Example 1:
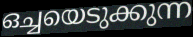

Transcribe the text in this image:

ഒച്ചയെടുക്കുന്ന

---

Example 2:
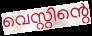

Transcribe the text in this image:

വെസ്റ്റിന്റെ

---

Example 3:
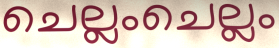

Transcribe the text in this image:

ചെല്ലംചെല്ലം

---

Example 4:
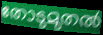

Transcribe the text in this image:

തോടുമുതൽ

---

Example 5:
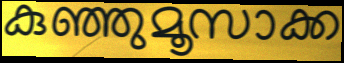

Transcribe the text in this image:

കുഞ്ഞുമൂസാക്ക